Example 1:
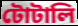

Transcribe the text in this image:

টোটালি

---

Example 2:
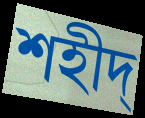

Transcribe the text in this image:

শহীদ্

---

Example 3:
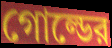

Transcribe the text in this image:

গোল্ডের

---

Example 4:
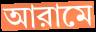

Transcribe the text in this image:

আরামে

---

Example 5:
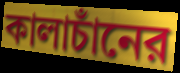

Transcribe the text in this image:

কালাচাঁনের